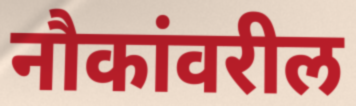
नौकांवरील